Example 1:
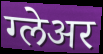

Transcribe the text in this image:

ग्लेअर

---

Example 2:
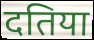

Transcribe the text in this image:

दतिया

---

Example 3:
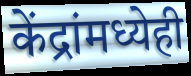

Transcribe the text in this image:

केंद्रांमध्येही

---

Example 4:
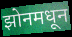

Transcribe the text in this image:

झोनमधून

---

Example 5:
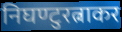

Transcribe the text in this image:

निघण्टुरत्नाकर